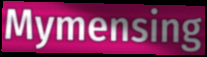
Mymensing